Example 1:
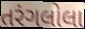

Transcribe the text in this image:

તરંગલોલા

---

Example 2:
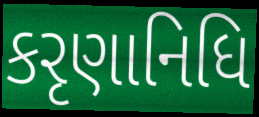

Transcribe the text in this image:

કરૃણાનિધિ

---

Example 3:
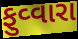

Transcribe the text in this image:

ફુવ્વારા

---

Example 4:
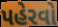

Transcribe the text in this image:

પહેરવો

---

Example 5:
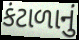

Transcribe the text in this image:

કંટાળાનું